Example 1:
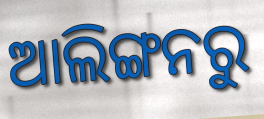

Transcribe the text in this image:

ଆଲିଙ୍ଗନରୁ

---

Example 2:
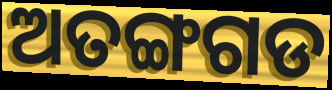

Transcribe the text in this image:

ଅତଙ୍ଗଗଡ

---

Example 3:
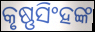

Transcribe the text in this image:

କୃଷ୍ଣସିଂହଙ୍କ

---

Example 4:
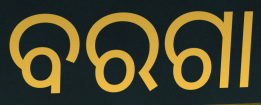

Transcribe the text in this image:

ବରଗା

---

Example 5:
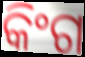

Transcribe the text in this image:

କିଂଗ